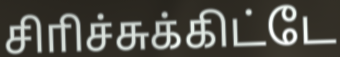
சிரிச்சுக்கிட்டே